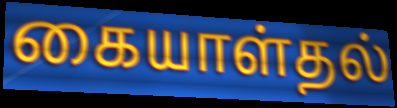
கையாள்தல்